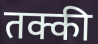
तक्की